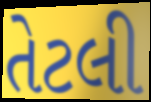
તેટલી